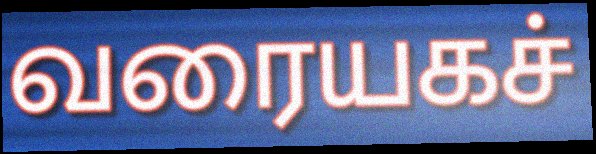
வரையகச்